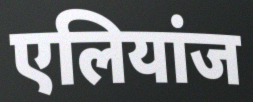
एलियांज